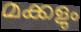
മക്കളും